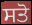
ਸਤੋ